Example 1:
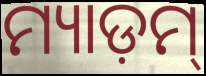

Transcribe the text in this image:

ମ୍ୟାଡ଼ମ୍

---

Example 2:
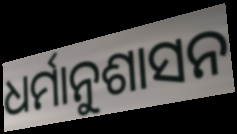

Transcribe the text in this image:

ଧର୍ମାନୁଶାସନ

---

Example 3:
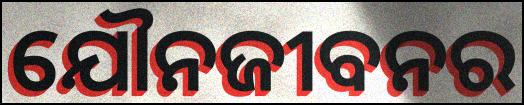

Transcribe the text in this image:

ଯୌନଜୀବନର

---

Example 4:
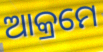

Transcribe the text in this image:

ଆକ୍ରମେ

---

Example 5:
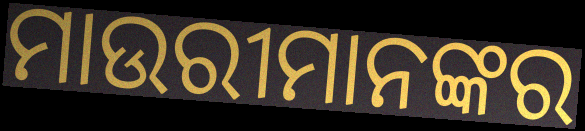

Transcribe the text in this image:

ମାଉରୀମାନଙ୍କର